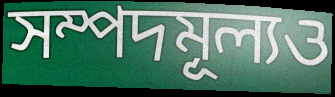
সম্পদমূল্যও